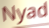
Nyad